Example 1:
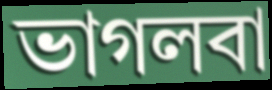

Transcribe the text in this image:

ভাগলবা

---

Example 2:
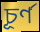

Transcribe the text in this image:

চূর্ণ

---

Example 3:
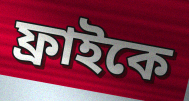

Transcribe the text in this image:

ফ্রাইকে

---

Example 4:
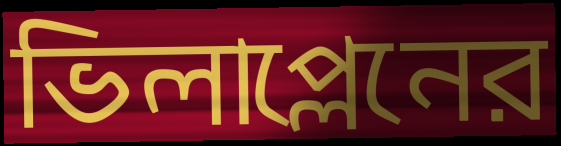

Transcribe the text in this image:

ভিলাপ্লেনের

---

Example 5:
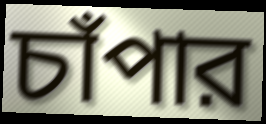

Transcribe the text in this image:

চাঁপার